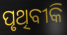
ପୃଥିବୀକି